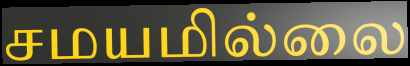
சமயமில்லை